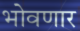
भोवणार